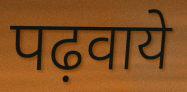
पढ़वाये